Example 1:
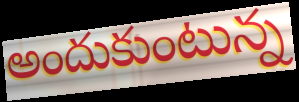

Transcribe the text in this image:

అందుకుంటున్న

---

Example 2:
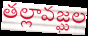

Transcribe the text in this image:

తల్లావజ్ఘల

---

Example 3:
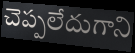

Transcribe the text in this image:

చెప్పలేదుగాని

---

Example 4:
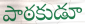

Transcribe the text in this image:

పాఠకుడూ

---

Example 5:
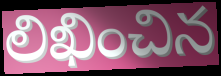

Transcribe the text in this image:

లిఖించిన